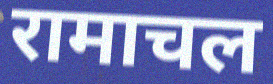
रामाचल